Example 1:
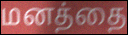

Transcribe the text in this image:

மனத்தை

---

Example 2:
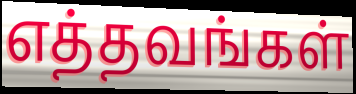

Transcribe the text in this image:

எத்தவங்கள்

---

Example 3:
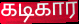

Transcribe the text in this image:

கடிகார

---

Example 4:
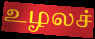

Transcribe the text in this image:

உழலச்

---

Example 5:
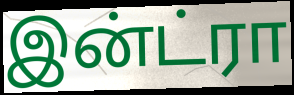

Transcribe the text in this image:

இன்ட்ரா